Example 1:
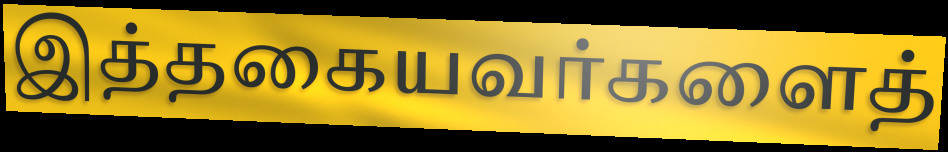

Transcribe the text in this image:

இத்தகையவர்களைத்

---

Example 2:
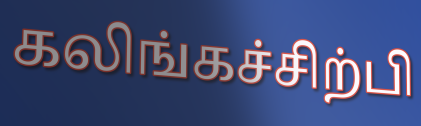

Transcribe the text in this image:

கலிங்கச்சிற்பி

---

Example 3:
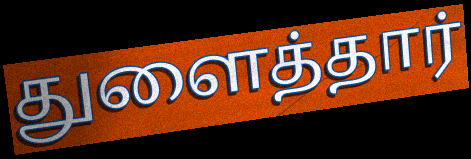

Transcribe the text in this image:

துளைத்தார்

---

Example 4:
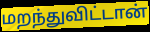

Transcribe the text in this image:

மறந்துவிட்டான்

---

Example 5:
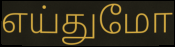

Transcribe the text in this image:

எய்துமோ